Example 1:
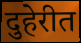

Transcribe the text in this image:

दुहेरीत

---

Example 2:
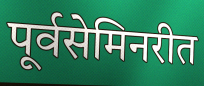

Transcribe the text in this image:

पूर्वसेमिनरीत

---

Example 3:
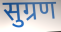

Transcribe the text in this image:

सुग्रण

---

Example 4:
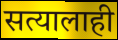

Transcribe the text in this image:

सत्यालाही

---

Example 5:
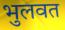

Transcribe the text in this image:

भुलवत